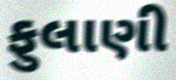
ફુલાણી